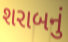
શરાબનું